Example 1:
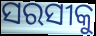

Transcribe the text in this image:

ସରସୀକୁ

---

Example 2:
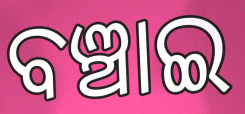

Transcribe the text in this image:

ବଞ୍ଚାଇ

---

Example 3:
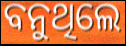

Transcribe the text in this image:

ବନୁଥିଲେ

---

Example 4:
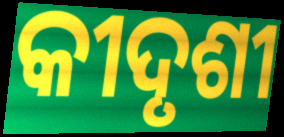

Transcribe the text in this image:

କୀଦୃଶୀ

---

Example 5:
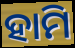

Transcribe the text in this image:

ହାମି